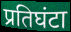
प्रतिघंटा